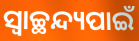
ସ୍ୱାଚ୍ଛନ୍ଦ୍ୟପାଇଁ